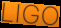
LIGO